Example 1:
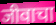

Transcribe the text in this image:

जीवाचा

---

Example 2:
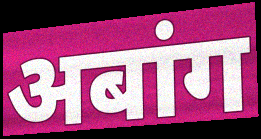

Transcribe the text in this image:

अबांग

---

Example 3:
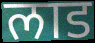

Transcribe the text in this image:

लाड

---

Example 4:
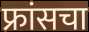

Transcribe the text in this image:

फ्रांसचा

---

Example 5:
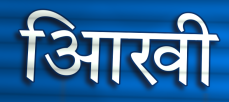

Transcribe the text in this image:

आिखी